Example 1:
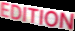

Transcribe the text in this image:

EDITION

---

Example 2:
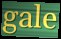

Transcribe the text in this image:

gale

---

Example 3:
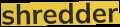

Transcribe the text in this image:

shredder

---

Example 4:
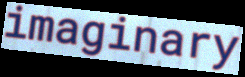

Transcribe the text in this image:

imaginary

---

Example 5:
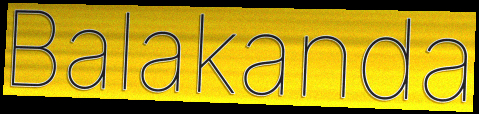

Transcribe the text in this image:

Balakanda